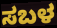
ಸಬಳ